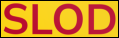
SLOD